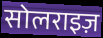
सोलराइज़